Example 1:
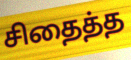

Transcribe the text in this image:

சிதைத்த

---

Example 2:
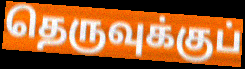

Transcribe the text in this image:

தெருவுக்குப்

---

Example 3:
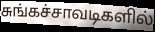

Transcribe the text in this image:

சுங்கச்சாவடிகளில்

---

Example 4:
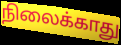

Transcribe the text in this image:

நிலைக்காது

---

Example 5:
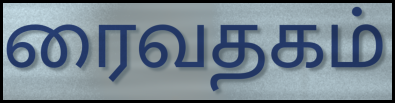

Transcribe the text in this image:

ரைவதகம்